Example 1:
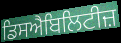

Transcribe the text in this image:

ਡਿਸਐਬਿਲਿਟੀਜ਼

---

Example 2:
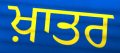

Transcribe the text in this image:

ਖ਼ਾਤਰ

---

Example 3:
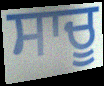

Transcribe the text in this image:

ਸਾਚੂ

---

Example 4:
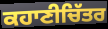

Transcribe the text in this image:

ਕਹਾਣੀਚਿੱਤਰ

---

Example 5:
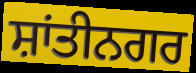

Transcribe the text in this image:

ਸ਼ਾਂਤੀਨਗਰ